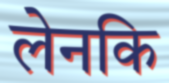
लेनकि